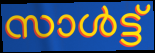
സാൾട്ട്